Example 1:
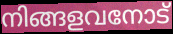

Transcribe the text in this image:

നിങ്ങളവനോട്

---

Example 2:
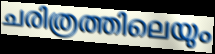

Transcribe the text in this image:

ചരിത്രത്തിലെയും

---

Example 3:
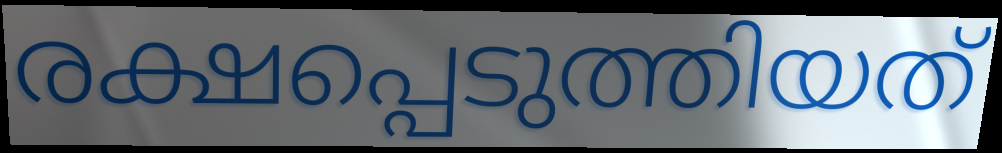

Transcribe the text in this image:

രക്ഷപ്പെടുത്തിയത്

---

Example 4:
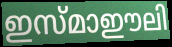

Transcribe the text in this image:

ഇസ്മാഈലി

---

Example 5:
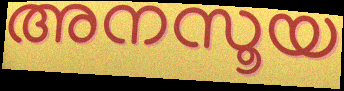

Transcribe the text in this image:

അനസൂയ